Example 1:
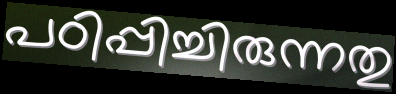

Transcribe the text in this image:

പഠിപ്പിച്ചിരുന്നതു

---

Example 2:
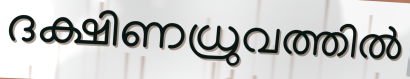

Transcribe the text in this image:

ദക്ഷിണധ്രുവത്തിൽ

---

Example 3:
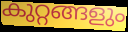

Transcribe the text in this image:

കുറ്റങ്ങളും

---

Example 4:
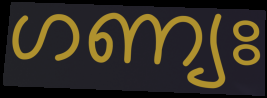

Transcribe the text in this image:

ഗണ്യഃ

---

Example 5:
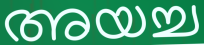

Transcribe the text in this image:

അയച്ച